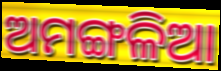
ଅମଙ୍ଗଳିଆ